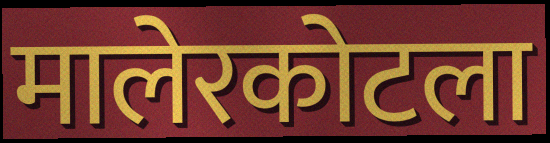
मालेरकोटला